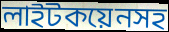
লাইটকয়েনসহ